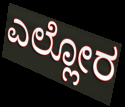
ಎಲ್ಲೋರ